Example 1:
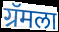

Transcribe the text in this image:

ग्रॅमला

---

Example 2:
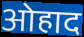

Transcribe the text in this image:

ओहाद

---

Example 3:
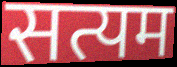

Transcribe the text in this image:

सत्यम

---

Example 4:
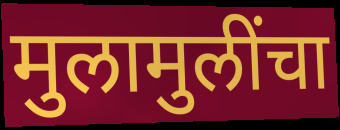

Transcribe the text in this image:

मुलामुलींचा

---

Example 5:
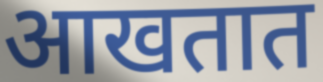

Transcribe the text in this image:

आखतात